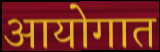
आयोगात